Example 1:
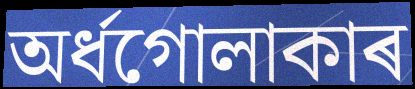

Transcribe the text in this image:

অৰ্ধগোলাকাৰ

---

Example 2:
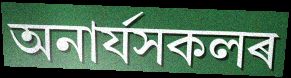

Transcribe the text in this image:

অনাৰ্যসকলৰ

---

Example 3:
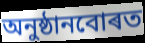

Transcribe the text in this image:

অনুষ্ঠানবোৰত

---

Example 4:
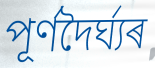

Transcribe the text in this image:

পূৰ্ণদৈৰ্ঘ্যৰ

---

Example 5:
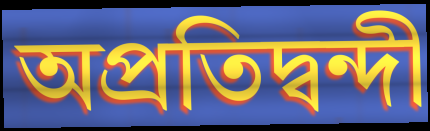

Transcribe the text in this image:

অপ্ৰতিদ্বন্দী